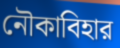
নৌকাবিহার